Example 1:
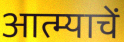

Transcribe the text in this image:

आत्म्याचें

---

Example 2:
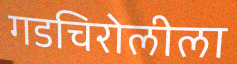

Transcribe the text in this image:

गडचिरोलीला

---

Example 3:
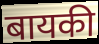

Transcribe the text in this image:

बायकी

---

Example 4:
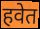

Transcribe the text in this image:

हवेत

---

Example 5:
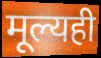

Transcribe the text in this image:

मूल्यही